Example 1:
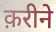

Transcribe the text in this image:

क़रीने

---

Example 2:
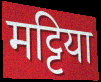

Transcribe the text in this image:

मट्टिया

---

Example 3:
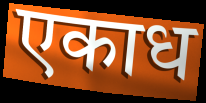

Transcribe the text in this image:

एकाध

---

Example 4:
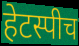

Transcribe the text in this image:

हेटस्पीच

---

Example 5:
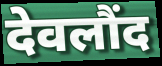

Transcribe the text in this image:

देवलौंद